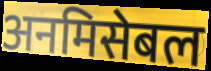
अनमिसेबल